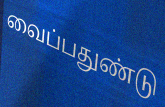
வைப்பதுண்டு